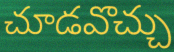
చూడవొచ్చు